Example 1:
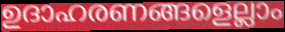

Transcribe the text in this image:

ഉദാഹരണങ്ങളെല്ലാം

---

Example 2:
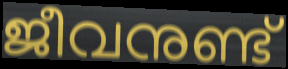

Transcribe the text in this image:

ജീവനുണ്ട്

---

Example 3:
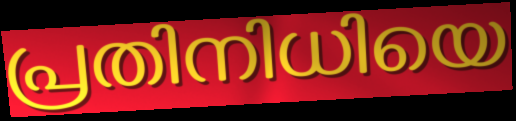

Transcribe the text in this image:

പ്രതിനിധിയെ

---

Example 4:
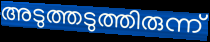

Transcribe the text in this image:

അടുത്തടുത്തിരുന്ന്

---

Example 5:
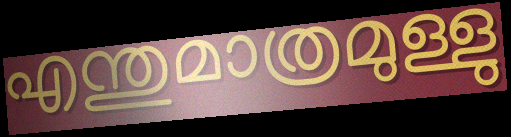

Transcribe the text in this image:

എന്തുമാത്രമുള്ളു